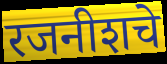
रजनीशचे